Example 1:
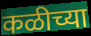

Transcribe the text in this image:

कळीच्या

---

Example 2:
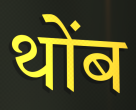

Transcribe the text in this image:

थोंब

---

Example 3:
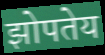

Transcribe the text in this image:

झोपतेय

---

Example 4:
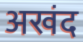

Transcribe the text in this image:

अखंद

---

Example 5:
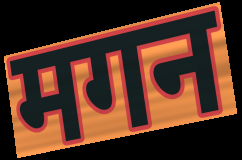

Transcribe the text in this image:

मगन